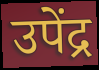
उपेंद्र